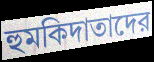
হুমকিদাতাদের